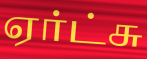
ஏர்ட்சு